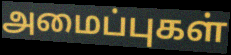
அமைப்புகள்